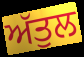
ਅੱਤੁਲ